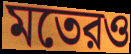
মতেরও